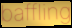
baffling